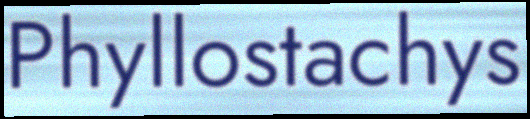
Phyllostachys